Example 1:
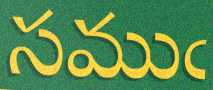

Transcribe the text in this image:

సముఁ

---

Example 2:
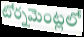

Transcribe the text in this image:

టోర్నమెంట్లలో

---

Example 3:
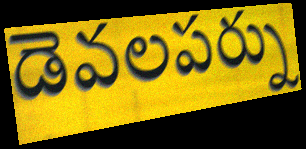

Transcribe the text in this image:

డెవలపర్ను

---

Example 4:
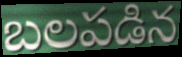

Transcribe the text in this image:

బలపడిన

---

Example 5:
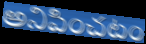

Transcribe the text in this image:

అనిపించటం